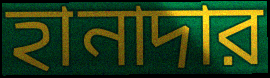
হানাদার